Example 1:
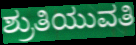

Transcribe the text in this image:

ಶ್ರುತಿಯುವತಿ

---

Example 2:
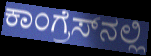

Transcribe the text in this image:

ಕಾಂಗ್ರೆಸ್‍ನಲ್ಲಿ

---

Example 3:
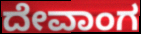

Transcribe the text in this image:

ದೇವಾಂಗ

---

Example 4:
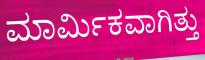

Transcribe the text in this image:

ಮಾರ್ಮಿಕವಾಗಿತ್ತು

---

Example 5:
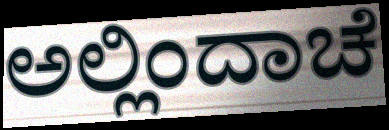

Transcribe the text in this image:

ಅಲ್ಲಿಂದಾಚೆ